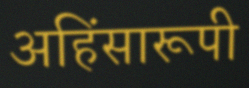
अहिंसारूपी